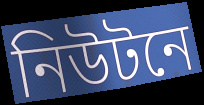
নিউটনে